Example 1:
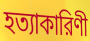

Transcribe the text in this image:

হত্যাকারিণী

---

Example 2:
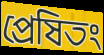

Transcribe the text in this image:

প্রেষিতং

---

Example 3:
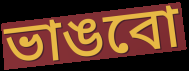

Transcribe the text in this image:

ভাঙবো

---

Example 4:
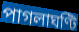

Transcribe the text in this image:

পাগলাঘণ্টি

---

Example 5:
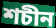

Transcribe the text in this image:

শচীন